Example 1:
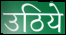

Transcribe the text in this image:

उठिये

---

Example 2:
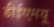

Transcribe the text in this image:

डीईएमयू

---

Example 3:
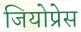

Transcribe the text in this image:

जियोप्रेस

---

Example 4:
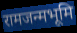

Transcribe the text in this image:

रामजन्मभूमि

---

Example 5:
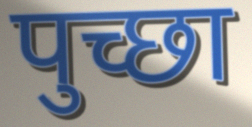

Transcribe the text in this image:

पुच्छा